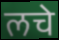
लचे